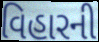
વિહારની